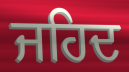
ਜਹਿਦ